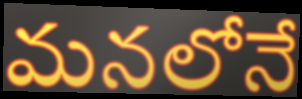
మనలోనే